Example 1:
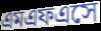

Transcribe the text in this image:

এমএফএসে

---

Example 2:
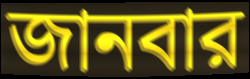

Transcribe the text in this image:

জানবার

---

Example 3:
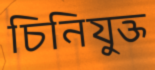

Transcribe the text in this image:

চিনিযুক্ত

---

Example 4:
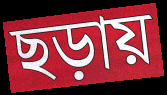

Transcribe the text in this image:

ছড়ায়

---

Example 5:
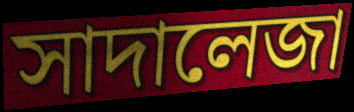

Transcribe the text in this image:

সাদালেজা